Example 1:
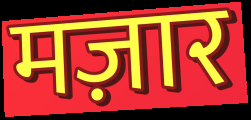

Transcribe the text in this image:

मज़ार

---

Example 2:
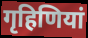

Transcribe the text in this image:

गृहिणियां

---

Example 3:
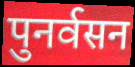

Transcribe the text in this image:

पुनर्वसन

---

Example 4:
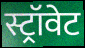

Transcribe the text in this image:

स्ट्रॉवेट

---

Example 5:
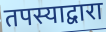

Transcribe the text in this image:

तपस्याद्वारा